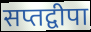
सप्तद्वीपा